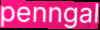
penngal